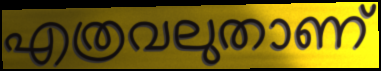
എത്രവലുതാണ്